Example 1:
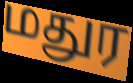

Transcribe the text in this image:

மதுர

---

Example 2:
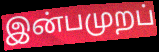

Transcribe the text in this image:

இன்பமுறப்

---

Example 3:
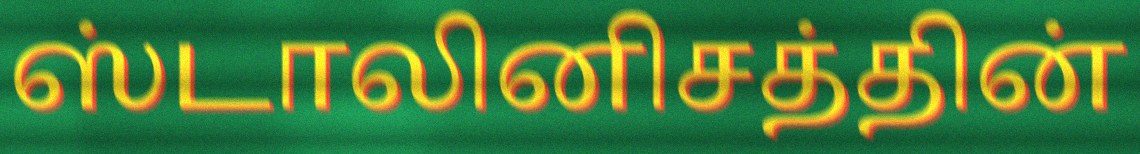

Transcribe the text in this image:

ஸ்டாலினிசத்தின்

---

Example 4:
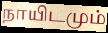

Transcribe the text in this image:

நாயிடமும்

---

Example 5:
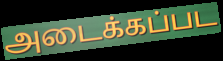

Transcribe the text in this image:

அடைக்கப்பட